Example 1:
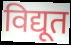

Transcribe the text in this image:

विद्यूत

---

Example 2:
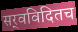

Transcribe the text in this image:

सर्वविदितच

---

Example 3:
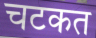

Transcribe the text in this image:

चटकत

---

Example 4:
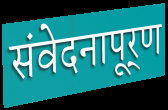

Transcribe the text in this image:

संवेदनापूर्ण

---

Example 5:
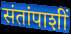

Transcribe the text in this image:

संतांपाशीं